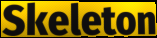
Skeleton